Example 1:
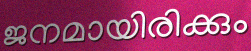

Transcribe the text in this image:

ജനമായിരിക്കും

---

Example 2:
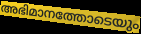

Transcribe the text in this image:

അഭിമാനത്തോടെയും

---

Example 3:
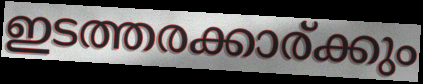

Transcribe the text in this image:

ഇടത്തരക്കാര്ക്കും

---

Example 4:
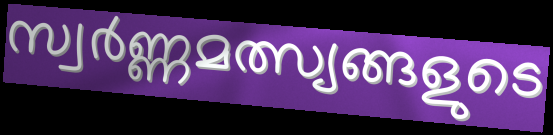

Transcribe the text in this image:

സ്വർണ്ണമത്സ്യങ്ങളുടെ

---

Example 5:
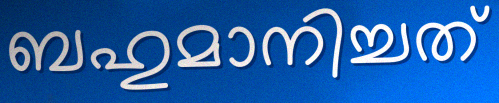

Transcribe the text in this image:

ബഹുമാനിച്ചത്